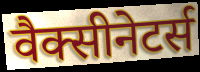
वैक्सीनेटर्स